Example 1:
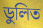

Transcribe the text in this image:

ডুলিত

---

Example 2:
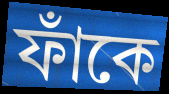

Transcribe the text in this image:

ফাঁকে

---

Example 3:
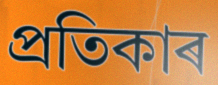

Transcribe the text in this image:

প্ৰতিকাৰ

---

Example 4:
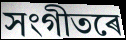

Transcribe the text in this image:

সংগীতৰে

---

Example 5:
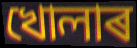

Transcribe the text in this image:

খোলাৰ